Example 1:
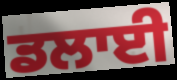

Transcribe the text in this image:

ਡਲਾਈ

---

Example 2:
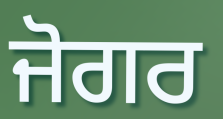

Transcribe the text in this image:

ਜੋਗਰ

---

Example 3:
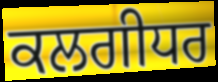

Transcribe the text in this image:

ਕਲਗੀਧਰ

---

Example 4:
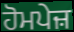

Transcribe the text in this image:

ਹੋਮਪੇਜ਼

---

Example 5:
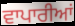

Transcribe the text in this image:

ਵਾਪਾਰੀਆਂ